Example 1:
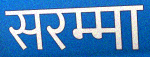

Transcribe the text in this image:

सरम्मा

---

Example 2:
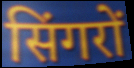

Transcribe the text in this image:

सिंगरों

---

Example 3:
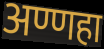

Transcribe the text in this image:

अण्णहा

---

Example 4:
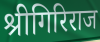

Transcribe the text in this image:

श्रीगिरिराज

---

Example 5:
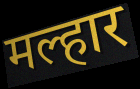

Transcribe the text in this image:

मल्हार